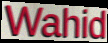
Wahid